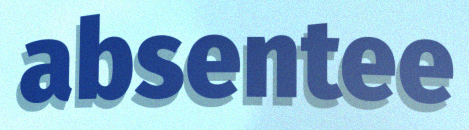
absentee